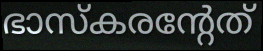
ഭാസ്കരന്റേത്